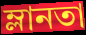
ম্লানতা